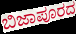
ಬಿಜಾಪೂರದ